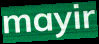
mayir